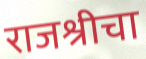
राजश्रीचा